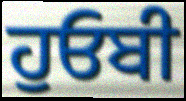
ਹੁਓਬੀ